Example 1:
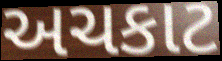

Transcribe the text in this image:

અચકાટ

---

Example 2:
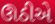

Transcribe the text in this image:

ઊઠીએ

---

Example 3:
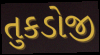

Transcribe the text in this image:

તુકડોજી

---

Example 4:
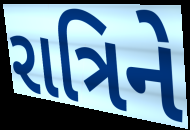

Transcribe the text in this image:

રાત્રિને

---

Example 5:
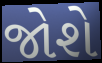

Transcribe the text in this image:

જોશે